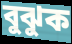
বুঝুক